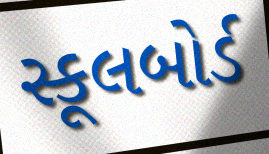
સ્કૂલબોર્ડ